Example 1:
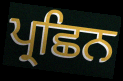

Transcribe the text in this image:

ਪ੍ਰਛਿਨ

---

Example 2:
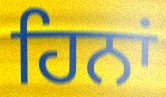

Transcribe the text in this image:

ਹਿਨਾਂ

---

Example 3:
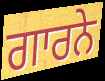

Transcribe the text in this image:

ਗਾਰਨੇ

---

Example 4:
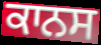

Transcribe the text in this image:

ਕਾਨਸ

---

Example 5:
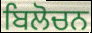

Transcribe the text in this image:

ਬਿਲੋਚਨ